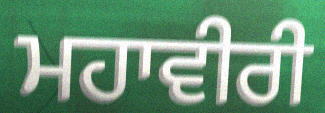
ਮਹਾਵੀਰੀ